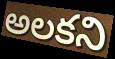
అలకని